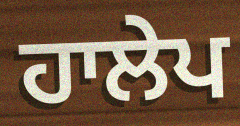
ਹਾਲੇਪ